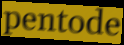
pentode